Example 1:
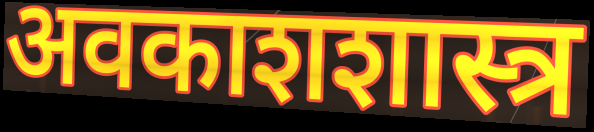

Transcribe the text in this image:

अवकाशशास्त्र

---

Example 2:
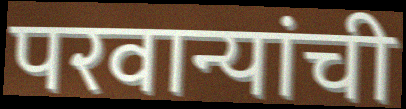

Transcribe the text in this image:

परवान्यांची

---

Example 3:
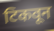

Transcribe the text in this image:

टिकवून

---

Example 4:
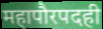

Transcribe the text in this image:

महापौरपदही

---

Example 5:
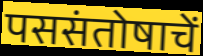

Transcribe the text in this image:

पससंतोषाचें